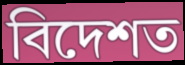
বিদেশত